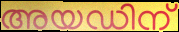
അയഡിന്